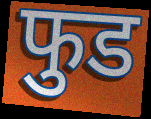
फुड